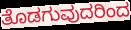
ತೊಡಗುವುದರಿಂದ